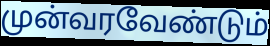
முன்வரவேண்டும்